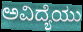
ಅವಿದ್ಯೆಯು